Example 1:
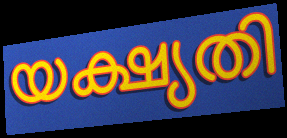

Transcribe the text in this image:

യക്ഷ്യതി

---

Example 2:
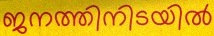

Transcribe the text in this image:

ജനത്തിനിടയിൽ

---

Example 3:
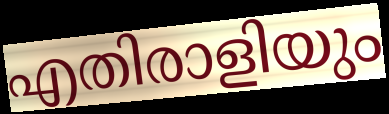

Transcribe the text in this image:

എതിരാളിയും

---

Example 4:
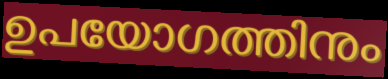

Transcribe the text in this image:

ഉപയോഗത്തിനും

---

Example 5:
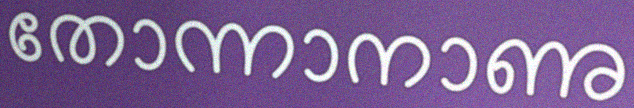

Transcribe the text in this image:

തോന്നാനാണു